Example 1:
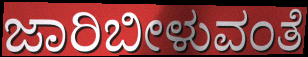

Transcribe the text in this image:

ಜಾರಿಬೀಳುವಂತೆ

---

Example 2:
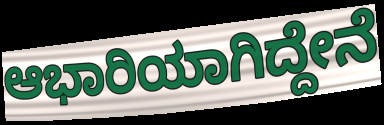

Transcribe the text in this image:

ಆಭಾರಿಯಾಗಿದ್ದೇನೆ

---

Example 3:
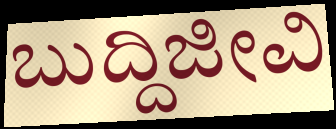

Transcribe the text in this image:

ಬುದ್ದಿಜೀವಿ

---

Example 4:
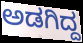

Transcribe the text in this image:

ಅಡಗಿದ್ದ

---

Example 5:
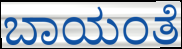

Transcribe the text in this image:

ಬಾಯಂತೆ